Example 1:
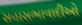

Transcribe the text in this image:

સહાસભાવાદીઓ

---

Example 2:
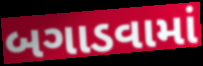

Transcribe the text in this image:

બગાડવામાં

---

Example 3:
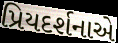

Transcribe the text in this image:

પ્રિયદર્શનાએ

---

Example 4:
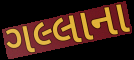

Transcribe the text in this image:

ગલ્લાના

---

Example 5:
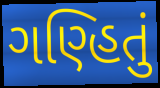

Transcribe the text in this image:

ગણ્હિતું